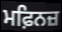
ਮਫ਼ਿਨਜ਼